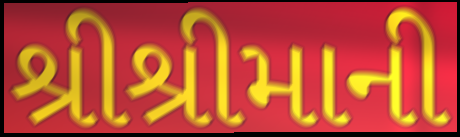
શ્રીશ્રીમાની